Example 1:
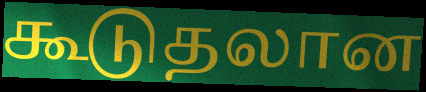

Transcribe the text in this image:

கூடுதலான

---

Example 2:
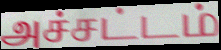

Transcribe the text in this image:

அச்சட்டம்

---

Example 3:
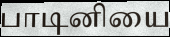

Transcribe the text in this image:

பாடினியை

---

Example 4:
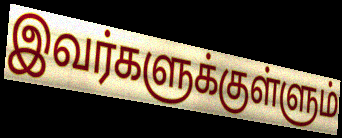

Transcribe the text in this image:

இவர்களுக்குள்ளும்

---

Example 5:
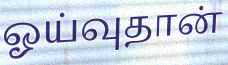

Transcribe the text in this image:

ஓய்வுதான்